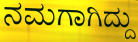
ನಮಗಾಗಿದ್ದು